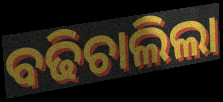
ବଢିଚାଲିଲା